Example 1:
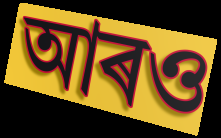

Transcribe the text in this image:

আৰও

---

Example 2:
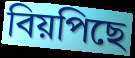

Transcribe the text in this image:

বিয়পিছে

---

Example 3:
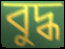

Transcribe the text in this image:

বুদ্ধ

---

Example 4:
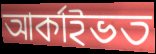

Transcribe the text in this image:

আৰ্কাইভত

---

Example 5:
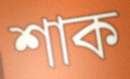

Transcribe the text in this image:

শাক